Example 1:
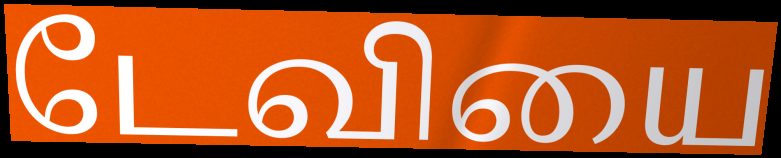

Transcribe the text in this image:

டேவியை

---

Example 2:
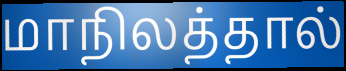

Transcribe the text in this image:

மாநிலத்தால்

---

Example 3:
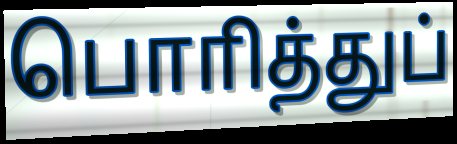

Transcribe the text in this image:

பொரித்துப்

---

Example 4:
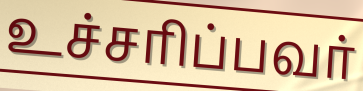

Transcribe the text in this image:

உச்சரிப்பவர்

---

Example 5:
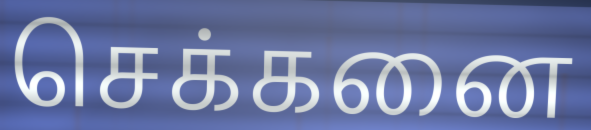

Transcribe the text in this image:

செக்கனை